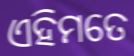
ଏହିମତେ